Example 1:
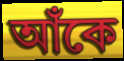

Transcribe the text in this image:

আঁকে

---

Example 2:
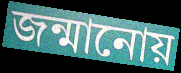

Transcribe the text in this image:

জন্মানোয়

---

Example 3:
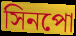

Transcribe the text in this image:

সিনপো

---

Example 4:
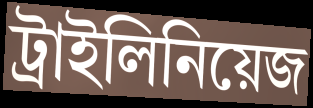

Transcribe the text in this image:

ট্রাইলিনিয়েজ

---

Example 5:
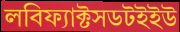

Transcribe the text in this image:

লবিফ্যাক্টসডটইইউ